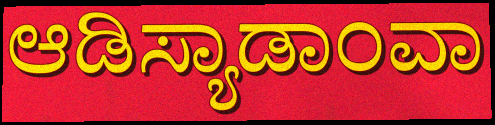
ಆಡಿಸ್ಯಾಡಾಂವಾ